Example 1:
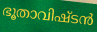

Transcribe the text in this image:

ഭൂതാവിഷ്ടൻ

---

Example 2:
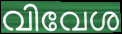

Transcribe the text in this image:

വിവേശ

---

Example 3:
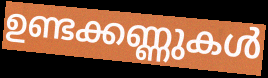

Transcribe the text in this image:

ഉണ്ടക്കണ്ണുകൾ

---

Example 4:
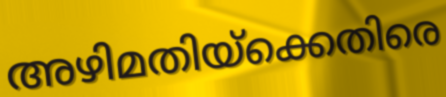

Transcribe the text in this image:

അഴിമതിയ്ക്കെതിരെ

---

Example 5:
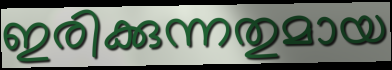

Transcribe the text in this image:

ഇരിക്കുന്നതുമായ